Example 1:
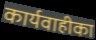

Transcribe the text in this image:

कार्यवाहीका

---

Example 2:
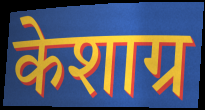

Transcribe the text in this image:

केशाग्र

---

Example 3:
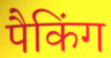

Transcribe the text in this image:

पैकिंग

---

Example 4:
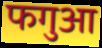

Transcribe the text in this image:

फगुआ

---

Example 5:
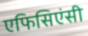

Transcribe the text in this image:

एफिसिएंसी